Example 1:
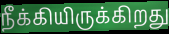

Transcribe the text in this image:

நீக்கியிருக்கிறது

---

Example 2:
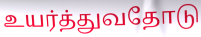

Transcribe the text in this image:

உயர்த்துவதோடு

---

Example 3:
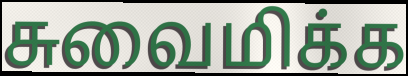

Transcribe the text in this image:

சுவைமிக்க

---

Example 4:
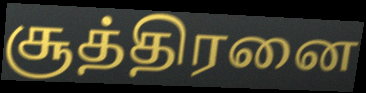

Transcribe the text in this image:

சூத்திரனை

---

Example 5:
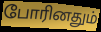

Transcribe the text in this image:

போரினதும்